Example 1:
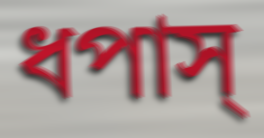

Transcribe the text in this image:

ধপাস্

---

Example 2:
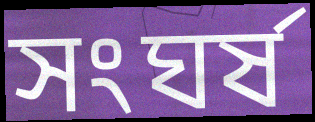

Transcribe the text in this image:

সংঘর্ষ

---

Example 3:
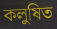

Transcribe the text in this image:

কলুষিত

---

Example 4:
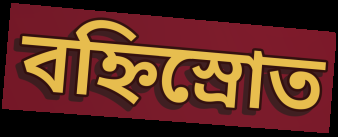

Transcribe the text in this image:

বহ্নিস্রোত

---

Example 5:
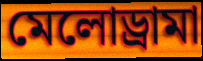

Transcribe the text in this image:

মেলোড্রামা